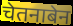
चेतनाबेन